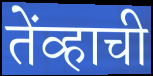
तेंव्हाची